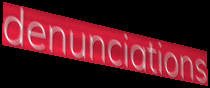
denunciations